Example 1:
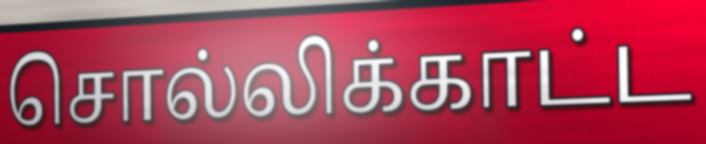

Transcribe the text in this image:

சொல்லிக்காட்ட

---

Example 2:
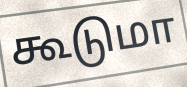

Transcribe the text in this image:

கூடுமா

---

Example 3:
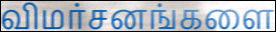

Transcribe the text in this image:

விமர்சனங்களை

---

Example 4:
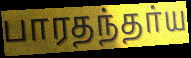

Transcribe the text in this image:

பாரதந்தர்ய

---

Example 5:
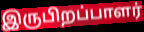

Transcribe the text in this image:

இருபிறப்பாளர்